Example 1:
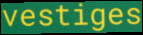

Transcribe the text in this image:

vestiges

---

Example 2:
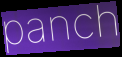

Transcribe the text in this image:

panch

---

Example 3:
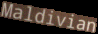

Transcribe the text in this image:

Maldivian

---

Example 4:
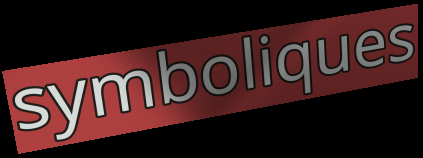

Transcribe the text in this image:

symboliques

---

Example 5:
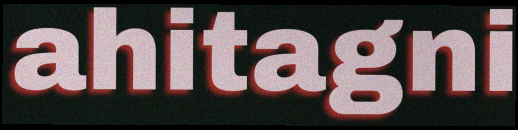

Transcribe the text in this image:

ahitagni